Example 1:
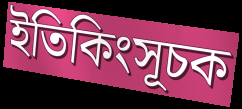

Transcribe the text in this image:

ইতিকিংসূচক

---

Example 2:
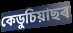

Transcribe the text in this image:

কেডুচিয়াছৰ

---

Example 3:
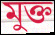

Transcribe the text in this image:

মুক্ত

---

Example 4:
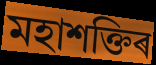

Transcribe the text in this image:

মহাশক্তিৰ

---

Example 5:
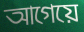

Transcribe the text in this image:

আগেয়ে